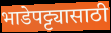
भाडेपट्ट्यासाठी